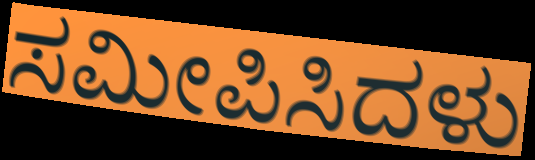
ಸಮೀಪಿಸಿದಳು